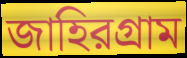
জাহিরগ্রাম